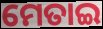
ମେତାଇ